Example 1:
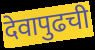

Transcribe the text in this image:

देवापुढची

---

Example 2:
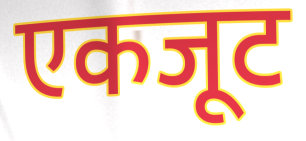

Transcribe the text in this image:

एकजूट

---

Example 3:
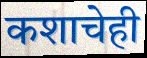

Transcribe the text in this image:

कशाचेही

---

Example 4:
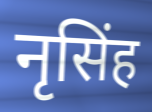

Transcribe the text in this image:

नृसिंह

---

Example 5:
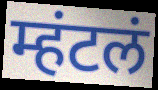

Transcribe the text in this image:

म्हंटलं